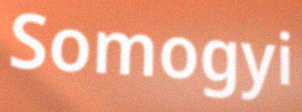
Somogyi